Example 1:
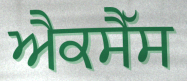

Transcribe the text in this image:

ਐਕਸੈੱਸ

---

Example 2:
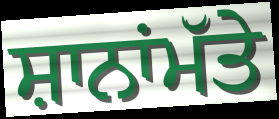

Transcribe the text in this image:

ਸ਼ਾਨਾਂਮੱਤੇ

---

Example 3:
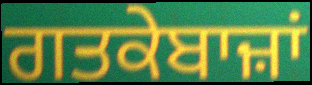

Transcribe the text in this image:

ਗਤਕੇਬਾਜ਼ਾਂ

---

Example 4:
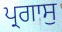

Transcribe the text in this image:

ਪ੍ਰਗਾਸੁ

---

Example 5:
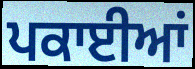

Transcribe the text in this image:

ਪਕਾਈਆਂ